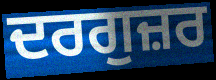
ਦਰਗੁਜ਼ਰ